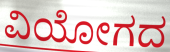
ವಿಯೋಗದ